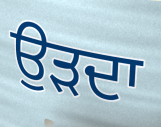
ਉੜਦਾ